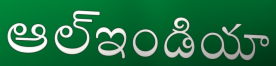
ఆల్ఇండియా